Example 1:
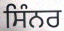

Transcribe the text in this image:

ਸਿੰਨਰ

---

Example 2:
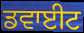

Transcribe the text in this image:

ਡਵਾਈਟ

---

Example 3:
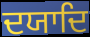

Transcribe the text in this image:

ਦਯਾਦਿ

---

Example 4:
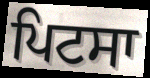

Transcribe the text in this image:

ਪਿਟਸਾ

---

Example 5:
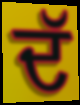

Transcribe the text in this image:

ਦੱ